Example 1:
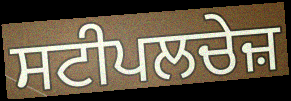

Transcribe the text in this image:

ਸਟੀਪਲਚੇਜ਼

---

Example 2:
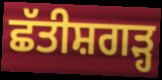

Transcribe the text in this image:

ਛੱਤੀਸ਼ਗੜ੍ਹ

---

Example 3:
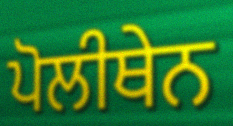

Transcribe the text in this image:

ਪੋਲੀਥੇਨ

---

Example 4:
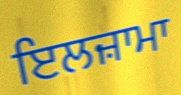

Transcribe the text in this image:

ਇਲਜ਼ਾਮਾ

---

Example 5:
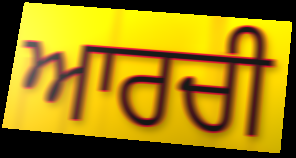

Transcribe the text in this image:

ਆਰਚੀ